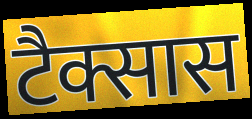
टैक्सास